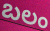
బలం